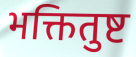
भक्तितुष्ट